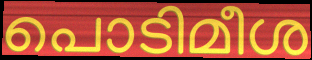
പൊടിമീശ